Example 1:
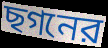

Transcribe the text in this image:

ছগনের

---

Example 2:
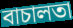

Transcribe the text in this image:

বাচালতা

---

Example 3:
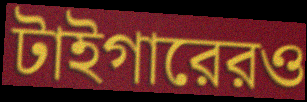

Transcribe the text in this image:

টাইগারেরও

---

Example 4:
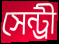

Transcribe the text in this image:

সেন্ট্রী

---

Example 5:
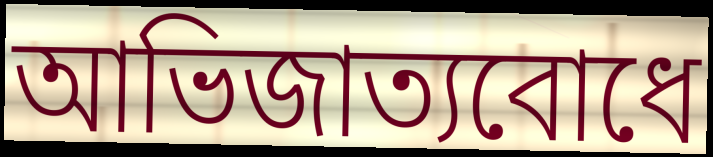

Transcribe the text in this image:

আভিজাত্যবোধে